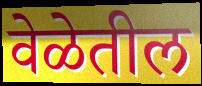
वेळेतील